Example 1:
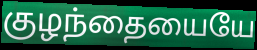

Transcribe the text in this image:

குழந்தையையே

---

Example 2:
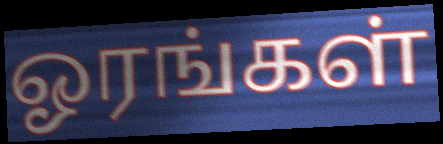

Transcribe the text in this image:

ஓரங்கள்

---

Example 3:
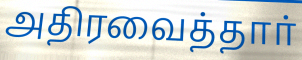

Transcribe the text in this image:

அதிரவைத்தார்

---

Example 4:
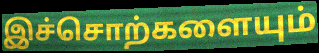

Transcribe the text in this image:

இச்சொற்களையும்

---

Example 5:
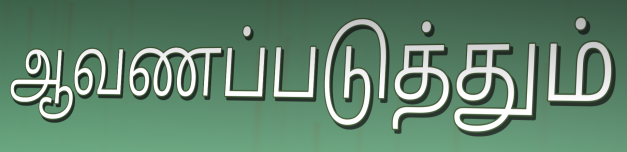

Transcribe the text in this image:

ஆவணப்படுத்தும்